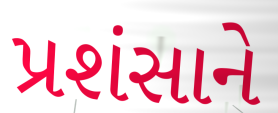
પ્રશંસાને